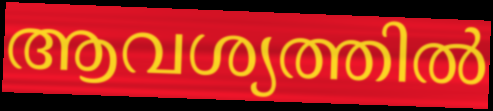
ആവശ്യത്തിൽ